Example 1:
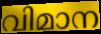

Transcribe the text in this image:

വിമാന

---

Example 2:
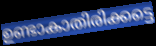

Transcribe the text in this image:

ഉണ്ടാകാതിരിക്കട്ടെ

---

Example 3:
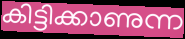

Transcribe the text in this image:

കിട്ടിക്കാണുന്ന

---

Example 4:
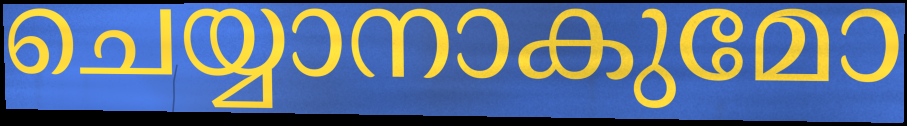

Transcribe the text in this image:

ചെയ്യാനാകുമോ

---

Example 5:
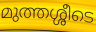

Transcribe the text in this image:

മുത്തശ്ശീടെ